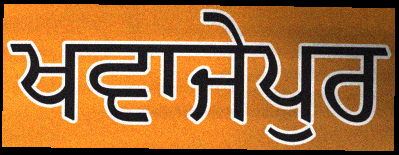
ਖਵਾਜੇਪੁਰ